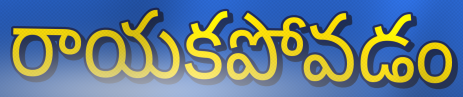
రాయకపోవడం